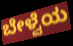
ಬೇಳ್ವೆಯ